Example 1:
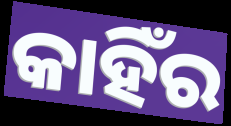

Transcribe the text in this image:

କାହିଁର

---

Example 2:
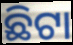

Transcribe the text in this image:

ଛିଟା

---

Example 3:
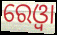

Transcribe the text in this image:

ରେଓ୍ବା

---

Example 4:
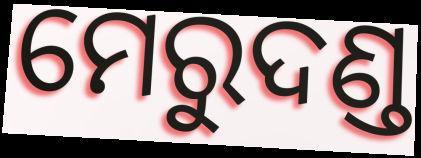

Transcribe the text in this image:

ମେରୁଦଣ୍ଡ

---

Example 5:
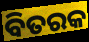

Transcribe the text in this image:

ବିତରକ